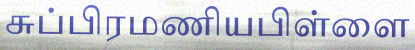
சுப்பிரமணியபிள்ளை